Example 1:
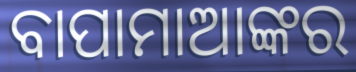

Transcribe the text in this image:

ବାପାମାଆଙ୍କର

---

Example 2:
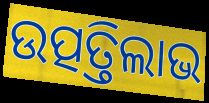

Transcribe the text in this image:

ଉତ୍ପତ୍ତିଲାଭ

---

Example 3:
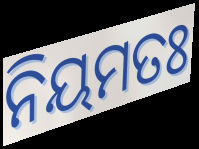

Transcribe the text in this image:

ନିୟମତଃ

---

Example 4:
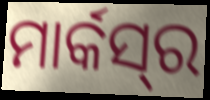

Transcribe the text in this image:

ମାର୍କସ୍‍ର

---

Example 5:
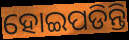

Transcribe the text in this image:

ହୋଇପଡିନ୍ତି